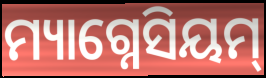
ମ୍ୟାଗ୍ନେସିୟମ୍